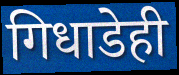
गिधाडेही